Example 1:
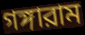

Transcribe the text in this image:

গঙ্গারাম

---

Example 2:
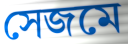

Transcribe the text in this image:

সেজমে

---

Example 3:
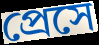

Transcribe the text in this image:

প্রেসে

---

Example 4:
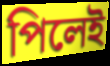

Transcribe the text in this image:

পিলেই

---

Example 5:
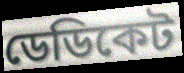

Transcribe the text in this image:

ডেডিকেট